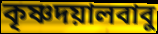
কৃষ্ণদয়ালবাবু